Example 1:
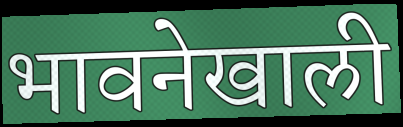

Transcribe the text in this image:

भावनेखाली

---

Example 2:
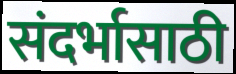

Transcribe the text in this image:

संदर्भासाठी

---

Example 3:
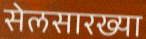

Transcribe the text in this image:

सेलसारख्या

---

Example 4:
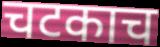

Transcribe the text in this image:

चटकाच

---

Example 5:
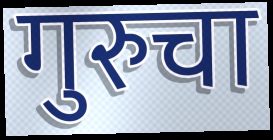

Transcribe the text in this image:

गुरुचा